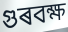
গুৰবক্ষ